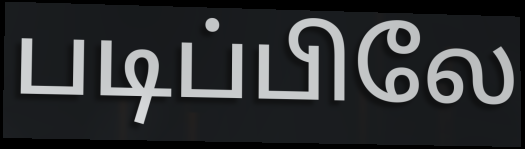
படிப்பிலே